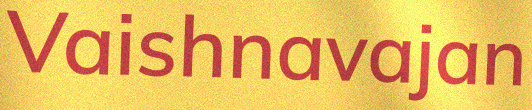
Vaishnavajan